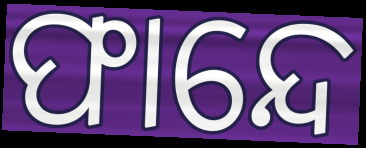
ଫାନ୍ଦେ